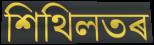
শিথিলতৰ